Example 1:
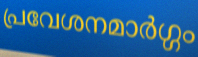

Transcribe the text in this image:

പ്രവേശനമാർഗ്ഗം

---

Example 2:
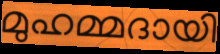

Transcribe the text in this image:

മുഹമ്മദായി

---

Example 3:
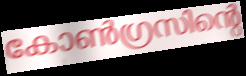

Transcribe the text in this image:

കോൺഗ്രസിന്റെ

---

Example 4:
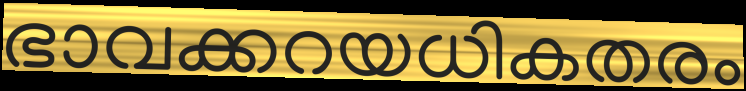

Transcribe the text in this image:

ഭാവക്കറയധികതരം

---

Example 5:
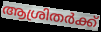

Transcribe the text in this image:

ആശ്രിതർക്ക്